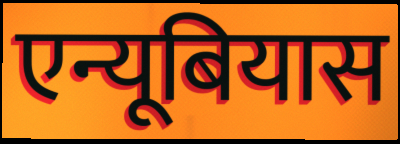
एन्यूबियास